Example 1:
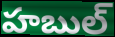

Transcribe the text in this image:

హబుల్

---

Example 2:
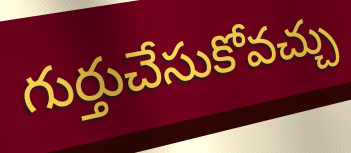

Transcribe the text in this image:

గుర్తుచేసుకోవచ్చు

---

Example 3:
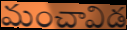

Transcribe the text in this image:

మంచావిడ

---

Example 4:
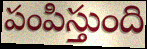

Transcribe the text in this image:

పంపిస్తుంది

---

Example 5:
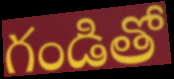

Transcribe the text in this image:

గండితో